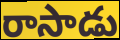
రాసాడు